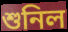
শুনিল